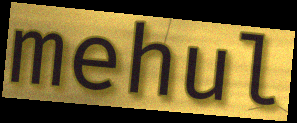
mehul